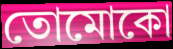
তোমোকো